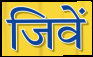
जिवें